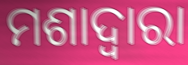
ମଶାଦ୍ୱାରା